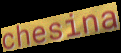
chesina